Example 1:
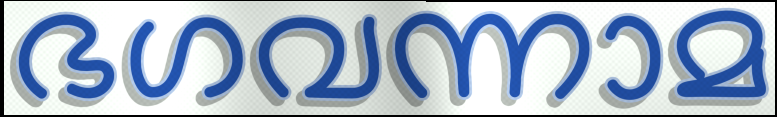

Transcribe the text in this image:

ഭഗവന്നാമ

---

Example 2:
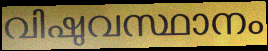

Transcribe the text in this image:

വിഷുവസ്ഥാനം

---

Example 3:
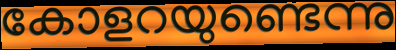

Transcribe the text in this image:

കോളറയുണ്ടെന്നു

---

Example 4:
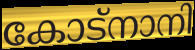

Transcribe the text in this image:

കോട്നാനി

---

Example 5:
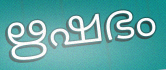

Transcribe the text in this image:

ഋഷഭം